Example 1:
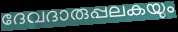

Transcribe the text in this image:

ദേവദാരുപ്പലകയും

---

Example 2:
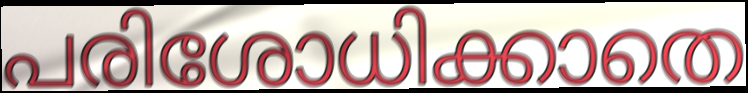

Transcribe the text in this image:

പരിശോധിക്കാതെ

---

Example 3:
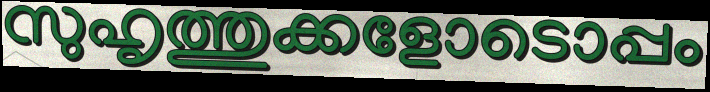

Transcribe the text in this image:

സുഹൃത്തുക്കളോടൊപ്പം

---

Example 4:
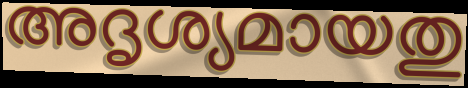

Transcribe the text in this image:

അദൃശ്യമായതു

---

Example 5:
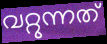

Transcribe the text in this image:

വറ്റുന്നത്